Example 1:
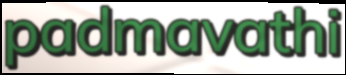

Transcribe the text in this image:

padmavathi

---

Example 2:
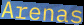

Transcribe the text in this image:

Arenas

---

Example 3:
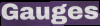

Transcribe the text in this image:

Gauges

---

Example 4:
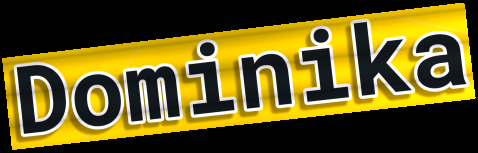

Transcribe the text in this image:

Dominika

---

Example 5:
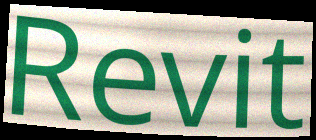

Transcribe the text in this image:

Revit